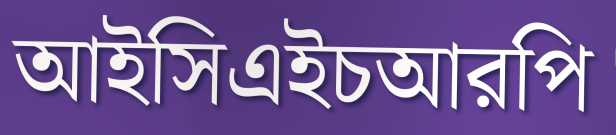
আইসিএইচআরপি